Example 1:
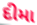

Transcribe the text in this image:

દીમા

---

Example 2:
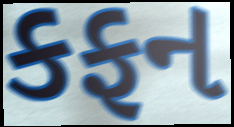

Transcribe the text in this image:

કફન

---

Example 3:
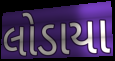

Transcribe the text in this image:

લોડાયા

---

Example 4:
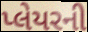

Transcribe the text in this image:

પ્લેયરની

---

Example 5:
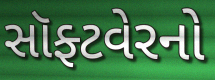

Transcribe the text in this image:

સૉફ્ટવેરનો